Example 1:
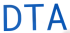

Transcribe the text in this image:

DTA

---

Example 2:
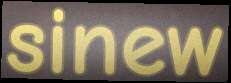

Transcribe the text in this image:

sinew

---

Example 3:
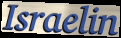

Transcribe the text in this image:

Israelin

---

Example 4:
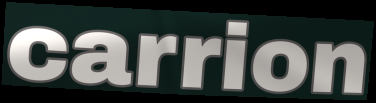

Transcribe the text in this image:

carrion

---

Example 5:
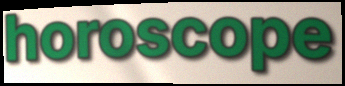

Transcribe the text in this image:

horoscope